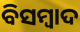
ବିସମ୍ୱାଦ